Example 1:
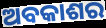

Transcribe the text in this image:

ଅବକାଶର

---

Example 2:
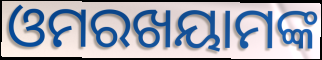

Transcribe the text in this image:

ଓମରଖୟାମଙ୍କ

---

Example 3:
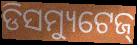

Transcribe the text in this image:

ଡିସମ୍ୟୁଟେଜ୍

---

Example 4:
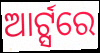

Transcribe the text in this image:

ଆର୍ଟ୍ସରେ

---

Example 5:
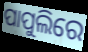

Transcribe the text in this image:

ପାପୁଲିରେ